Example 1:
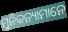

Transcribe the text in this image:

ମୁନିକନ୍ୟାମାନେ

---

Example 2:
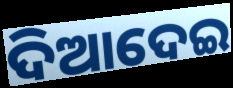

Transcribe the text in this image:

ଦିଆଦେଇ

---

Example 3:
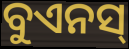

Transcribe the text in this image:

ବୁଏନସ୍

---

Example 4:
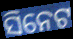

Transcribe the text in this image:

ସିନେଟ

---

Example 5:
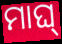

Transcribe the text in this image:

ମାଘ୍